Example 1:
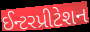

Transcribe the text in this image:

ઈન્ટરપ્રીટેશન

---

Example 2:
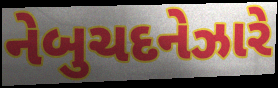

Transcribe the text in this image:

નેબુચદનેઝારે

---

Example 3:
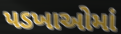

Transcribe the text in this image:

પડખાઓમાં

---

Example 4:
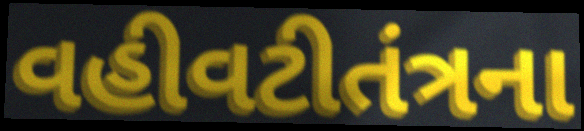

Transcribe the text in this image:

વહીવટીતંત્રના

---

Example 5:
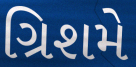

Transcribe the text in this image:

ગ્રિશમે